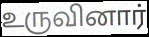
உருவினார்